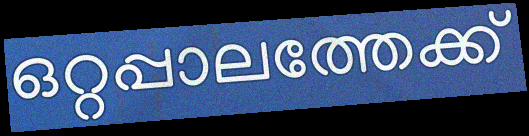
ഒറ്റപ്പാലത്തേക്ക്